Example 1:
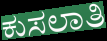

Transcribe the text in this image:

ಕುಸಲಾತಿ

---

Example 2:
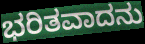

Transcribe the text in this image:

ಭರಿತವಾದನು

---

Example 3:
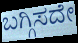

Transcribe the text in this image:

ಬಗ್ಗಿಸದೇ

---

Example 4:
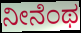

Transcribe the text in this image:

ನೀನೆಂಥ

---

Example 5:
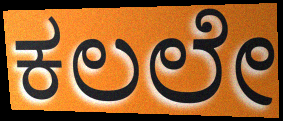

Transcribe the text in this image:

ಕಲಲೇ